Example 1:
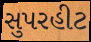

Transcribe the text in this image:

સુપરહીટ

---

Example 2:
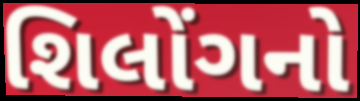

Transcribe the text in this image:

શિલોંગનો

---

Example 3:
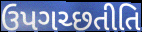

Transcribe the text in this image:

ઉપગચ્છતીતિ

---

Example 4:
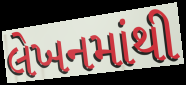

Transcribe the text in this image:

લેખનમાંથી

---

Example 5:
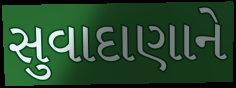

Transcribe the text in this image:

સુવાદાણાને